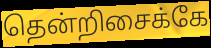
தென்றிசைக்கே